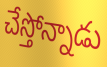
చేస్తోన్నాడు